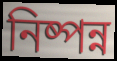
নিষ্পন্ন